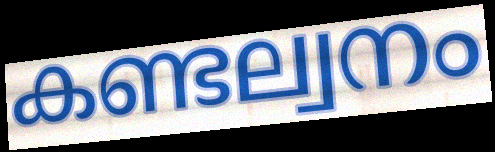
കണ്ടല്വനം